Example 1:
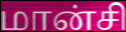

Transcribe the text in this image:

மான்சி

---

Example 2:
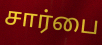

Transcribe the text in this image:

சார்பை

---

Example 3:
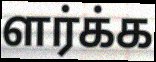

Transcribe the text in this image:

ளர்க்க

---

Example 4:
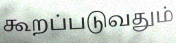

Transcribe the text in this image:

கூறப்படுவதும்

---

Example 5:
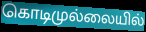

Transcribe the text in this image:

கொடிமுல்லையில்